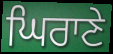
ਘਿਰਾਣੇ